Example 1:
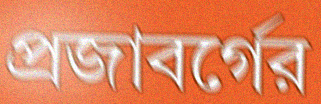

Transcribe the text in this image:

প্রজাবর্গের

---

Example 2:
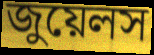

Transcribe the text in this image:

জুয়েলস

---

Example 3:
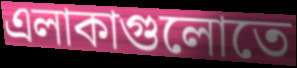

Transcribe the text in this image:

এলাকাগুলোতে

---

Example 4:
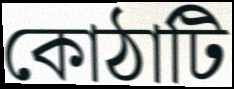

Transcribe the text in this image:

কোঠাটি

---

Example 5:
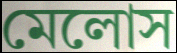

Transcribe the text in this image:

মেলোস